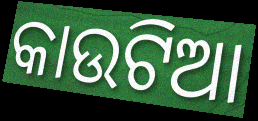
କାଉଟିଆ